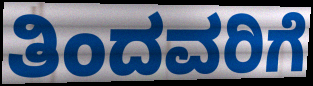
ತಿಂದವರಿಗೆ